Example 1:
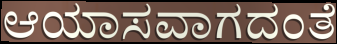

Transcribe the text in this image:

ಆಯಾಸವಾಗದಂತೆ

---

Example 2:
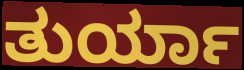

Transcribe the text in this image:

ತುರ್ಯಾ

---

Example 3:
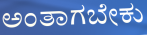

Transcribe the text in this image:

ಅಂತಾಗಬೇಕು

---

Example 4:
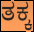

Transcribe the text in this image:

ತಕ್ಕ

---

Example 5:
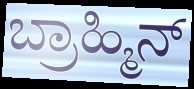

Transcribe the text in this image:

ಬ್ರಾಹ್ಮಿನ್